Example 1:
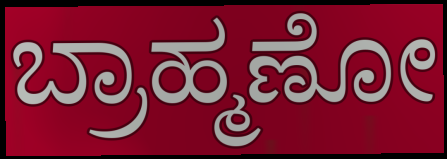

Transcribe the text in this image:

ಬ್ರಾಹ್ಮಣೋ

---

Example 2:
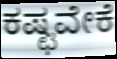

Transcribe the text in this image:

ಕಷ್ಟವೇಕೆ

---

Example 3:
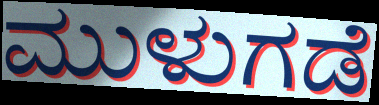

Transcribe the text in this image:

ಮುಳುಗಡೆ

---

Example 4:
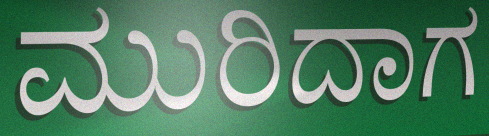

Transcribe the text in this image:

ಮುರಿದಾಗ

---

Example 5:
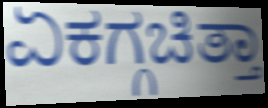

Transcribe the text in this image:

ಏಕಗ್ಗಚಿತ್ತಾ